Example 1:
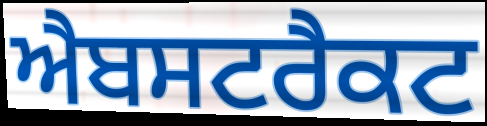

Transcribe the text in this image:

ਐਬਸਟਰੈਕਟ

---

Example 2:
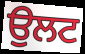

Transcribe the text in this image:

ਉਲਟ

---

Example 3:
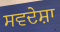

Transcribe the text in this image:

ਸਵਦੇਸ਼ਾ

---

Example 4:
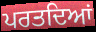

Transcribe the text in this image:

ਪਰਤਦਿਆਂ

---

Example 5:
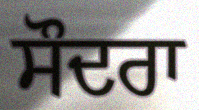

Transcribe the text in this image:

ਸੌਦਰਾ